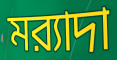
মর‍্যাদা